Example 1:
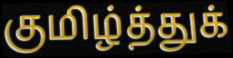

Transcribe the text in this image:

குமிழ்த்துக்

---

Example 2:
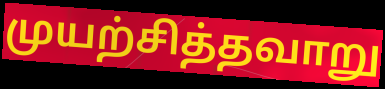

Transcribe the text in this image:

முயற்சித்தவாறு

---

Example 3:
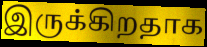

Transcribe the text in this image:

இருக்கிறதாக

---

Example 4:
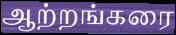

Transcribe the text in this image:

ஆற்றங்கரை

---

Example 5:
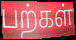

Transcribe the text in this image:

பற்கள்